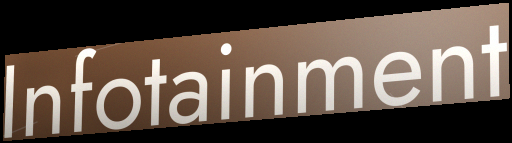
Infotainment